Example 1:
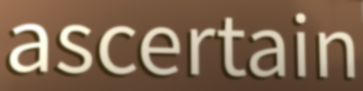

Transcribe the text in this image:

ascertain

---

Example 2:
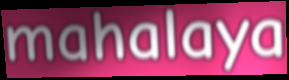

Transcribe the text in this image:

mahalaya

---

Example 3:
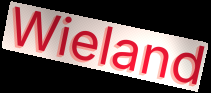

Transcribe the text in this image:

Wieland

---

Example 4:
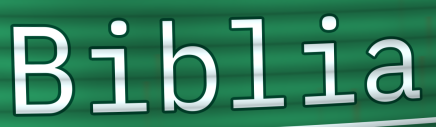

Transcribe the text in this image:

Biblia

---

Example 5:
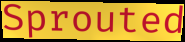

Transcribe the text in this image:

Sprouted